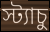
স্ট্যাচু